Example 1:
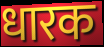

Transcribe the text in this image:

धारक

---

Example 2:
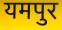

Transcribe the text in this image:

यमपुर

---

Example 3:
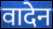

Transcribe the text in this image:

वादेन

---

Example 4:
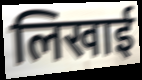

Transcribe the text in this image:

लिखाई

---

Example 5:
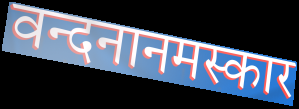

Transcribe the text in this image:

वन्दनानमस्कार